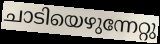
ചാടിയെഴുന്നേറ്റു